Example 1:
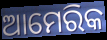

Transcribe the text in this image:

ଆମେରିକ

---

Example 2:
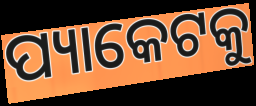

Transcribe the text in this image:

ପ୍ୟାକେଟକୁ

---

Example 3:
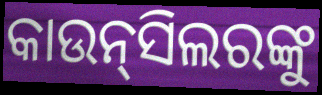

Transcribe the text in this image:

କାଉନ୍‌ସିଲରଙ୍କୁ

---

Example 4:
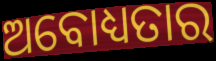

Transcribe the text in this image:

ଅବୋଧ୍ୟତାର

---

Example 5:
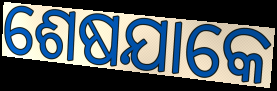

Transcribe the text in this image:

ଶେଷଯାକେ